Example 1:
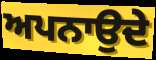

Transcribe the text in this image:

ਅਪਨਾਉਦੇ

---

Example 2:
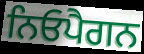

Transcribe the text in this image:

ਨਿਓਪੈਗਨ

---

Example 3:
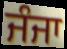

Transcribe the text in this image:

ਜੰਜਾ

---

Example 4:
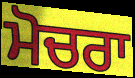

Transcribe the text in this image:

ਮੋਚਰਾ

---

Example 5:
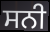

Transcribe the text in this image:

ਸਨੀ